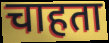
चाहता